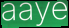
aaye